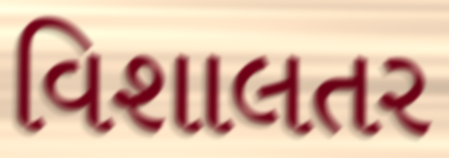
વિશાલતર